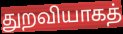
துறவியாகத்